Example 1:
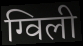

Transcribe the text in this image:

ग्विली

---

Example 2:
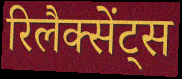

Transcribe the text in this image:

रिलैक्सेंट्स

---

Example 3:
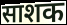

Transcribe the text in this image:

साशक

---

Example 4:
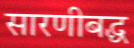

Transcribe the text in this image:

सारणीबद्ध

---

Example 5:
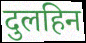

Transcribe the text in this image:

दुलहिन